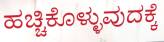
ಹಚ್ಚಿಕೊಳ್ಳುವುದಕ್ಕೆ